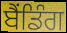
ਬੈਂਡਿੰਗ